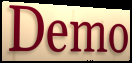
Demo